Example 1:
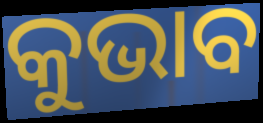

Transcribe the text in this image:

କୁଭାବ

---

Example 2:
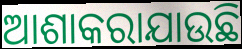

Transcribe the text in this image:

ଆଶାକରାଯାଉଛି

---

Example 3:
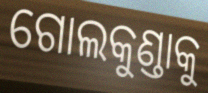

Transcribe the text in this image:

ଗୋଲକୁଣ୍ଡାକୁ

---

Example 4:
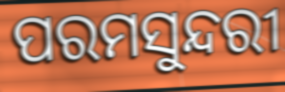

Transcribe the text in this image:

ପରମସୁନ୍ଦରୀ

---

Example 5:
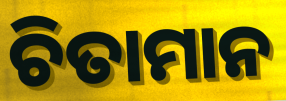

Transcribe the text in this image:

ଚିତାମାନ